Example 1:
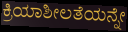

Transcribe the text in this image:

ಕ್ರಿಯಾಶೀಲತೆಯನ್ನೇ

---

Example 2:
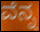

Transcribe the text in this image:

ವೆನ್ನ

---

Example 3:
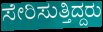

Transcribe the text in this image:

ಸೇರಿಸುತ್ತಿದ್ದರು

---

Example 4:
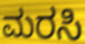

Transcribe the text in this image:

ಮರಸಿ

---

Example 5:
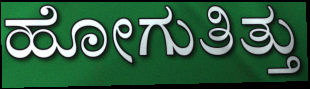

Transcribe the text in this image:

ಹೋಗುತಿತ್ತು